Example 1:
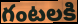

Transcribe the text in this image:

గంటలకి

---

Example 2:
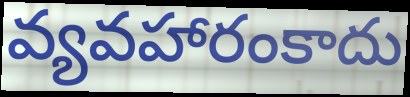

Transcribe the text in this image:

వ్యవహారంకాదు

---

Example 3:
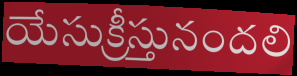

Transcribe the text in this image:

యేసుక్రీస్తునందలి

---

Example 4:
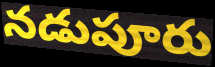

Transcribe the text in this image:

నడుపూరు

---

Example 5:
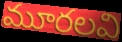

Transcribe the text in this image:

మూరలవి